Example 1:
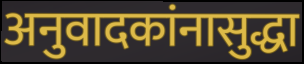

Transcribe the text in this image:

अनुवादकांनासुद्धा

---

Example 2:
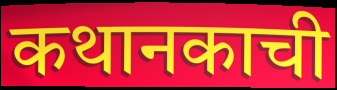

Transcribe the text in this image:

कथानकाची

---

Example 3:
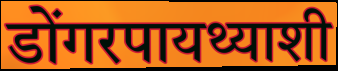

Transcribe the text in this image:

डोंगरपायथ्याशी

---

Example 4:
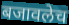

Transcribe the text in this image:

बजावलेच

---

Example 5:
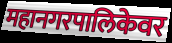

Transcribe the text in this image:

महानगरपालिकेवर